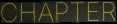
CHAPTER